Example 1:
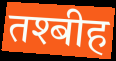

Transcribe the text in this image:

तश्बीह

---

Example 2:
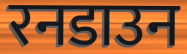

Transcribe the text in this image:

रनडाउन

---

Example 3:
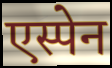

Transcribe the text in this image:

एस्पेन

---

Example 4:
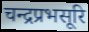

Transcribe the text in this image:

चन्द्रप्रभसूरि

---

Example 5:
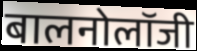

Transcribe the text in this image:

बालनोलॉजी